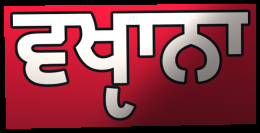
ਵਖੵਾਨਾ